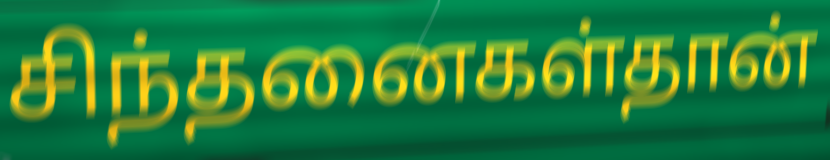
சிந்தனைகள்தான்